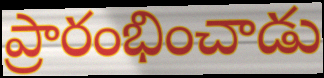
ప్రారంభించాడు